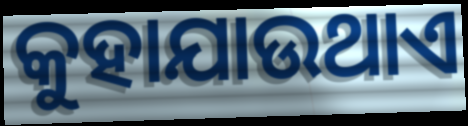
କୁହାଯାଉଥାଏ